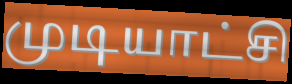
முடியாட்சி